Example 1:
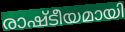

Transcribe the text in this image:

രാഷ്ടീയമായി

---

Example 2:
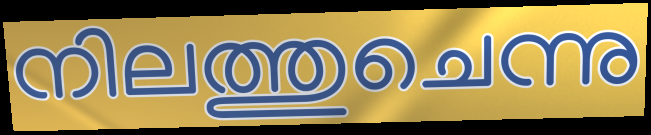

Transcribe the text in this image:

നിലത്തുചെന്നു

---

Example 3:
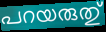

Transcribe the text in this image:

പറയരുതു്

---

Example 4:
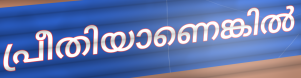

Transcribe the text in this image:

പ്രീതിയാണെങ്കിൽ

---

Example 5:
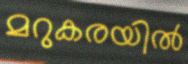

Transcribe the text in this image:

മറുകരയിൽ